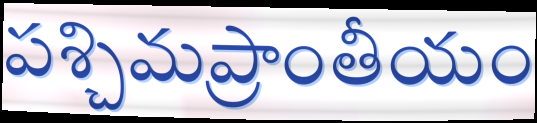
పశ్చిమప్రాంతీయం